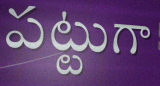
పట్టుగా